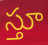
స్తూ